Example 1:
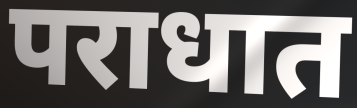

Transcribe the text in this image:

पराधात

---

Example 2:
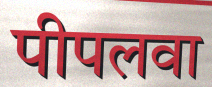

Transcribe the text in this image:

पीपलवा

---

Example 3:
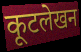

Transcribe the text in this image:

कूटलेखन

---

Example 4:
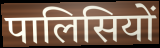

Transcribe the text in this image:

पालिसियों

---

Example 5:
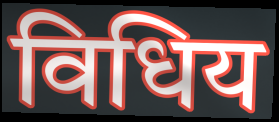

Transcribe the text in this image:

विधिय